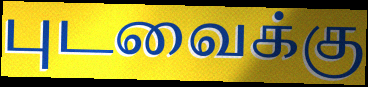
புடவைக்கு